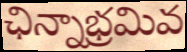
ఛిన్నాభ్రమివ